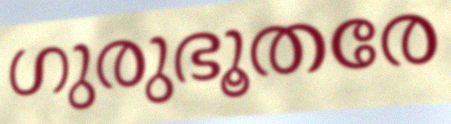
ഗുരുഭൂതരേ